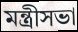
মন্ত্রীসভা